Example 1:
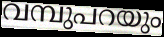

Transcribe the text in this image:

വമ്പുപറയും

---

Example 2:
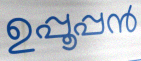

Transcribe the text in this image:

ഉപ്പൂപ്പൻ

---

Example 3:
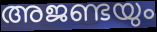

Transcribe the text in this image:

അജണ്ടയും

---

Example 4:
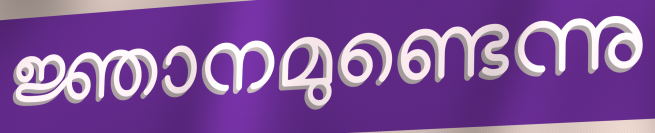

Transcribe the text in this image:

ജ്ഞാനമുണ്ടെന്നു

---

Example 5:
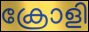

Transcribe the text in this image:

ക്രോളി